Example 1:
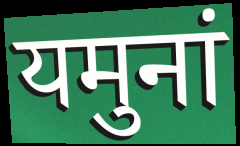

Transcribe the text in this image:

यमुनां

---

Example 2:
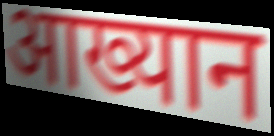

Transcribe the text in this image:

आख्यान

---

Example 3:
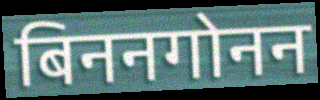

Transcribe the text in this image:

बिननगोनन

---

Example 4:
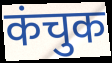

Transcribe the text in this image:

कंचुक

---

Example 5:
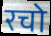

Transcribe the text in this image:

रचो